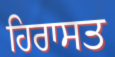
ਹਿਰਾਸਤ